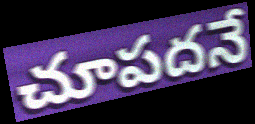
చూపదనే